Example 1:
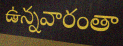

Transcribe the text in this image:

ఉన్నవారంతా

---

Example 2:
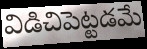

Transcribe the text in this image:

విడిచిపెట్టడమే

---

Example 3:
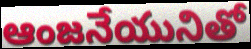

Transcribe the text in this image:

ఆంజనేయునితో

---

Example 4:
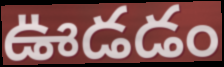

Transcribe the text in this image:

ఊడడం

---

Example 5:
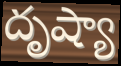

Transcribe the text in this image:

దృష్యా